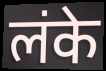
लंके